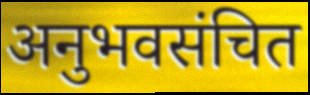
अनुभवसंचित